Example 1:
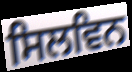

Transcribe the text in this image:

ਸਿਲਵਿਨ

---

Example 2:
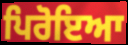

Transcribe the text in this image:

ਪਿਰੋਇਆ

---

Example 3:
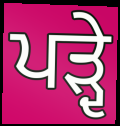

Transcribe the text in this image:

ਪੜ੍ਦੇ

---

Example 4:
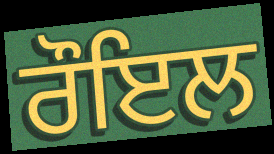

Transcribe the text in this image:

ਰੌਇਲ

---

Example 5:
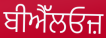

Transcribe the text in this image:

ਬੀਐੱਲਓਜ਼